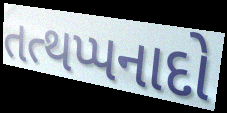
તત્થપ્પનાદો